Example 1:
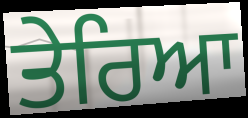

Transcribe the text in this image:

ਤੇਰਿਆ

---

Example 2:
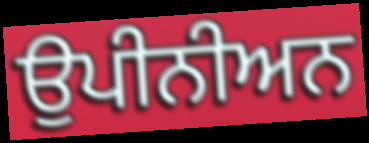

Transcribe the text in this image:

ਉਪੀਨੀਅਨ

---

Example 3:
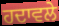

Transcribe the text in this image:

ਹਦਾਵਲੇ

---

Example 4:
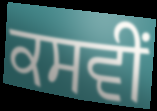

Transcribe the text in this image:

ਕਸਵੀਂ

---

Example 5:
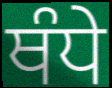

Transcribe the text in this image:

ਥੰਧੇ